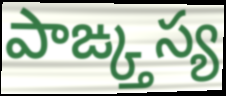
పాఙ్క్తస్య